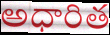
అధారిత